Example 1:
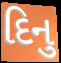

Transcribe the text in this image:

દિનુ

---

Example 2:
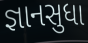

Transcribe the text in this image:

જ્ઞાનસુધા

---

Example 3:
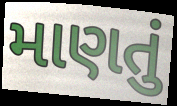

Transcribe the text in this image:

માણતું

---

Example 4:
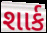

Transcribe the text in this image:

શાર્ક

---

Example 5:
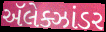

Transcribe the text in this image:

ઍલેક્ઝાંડર